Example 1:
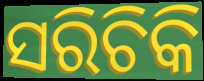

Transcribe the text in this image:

ସରିଚିକି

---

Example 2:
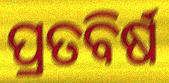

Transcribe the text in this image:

ପ୍ରତବିର୍ଷ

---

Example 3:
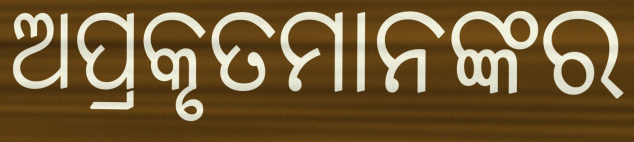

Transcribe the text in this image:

ଅପ୍ରକୃତମାନଙ୍କର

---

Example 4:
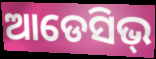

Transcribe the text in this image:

ଆଡେସିଭ୍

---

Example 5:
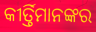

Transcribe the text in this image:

କୀର୍ତ୍ତିମାନଙ୍କର